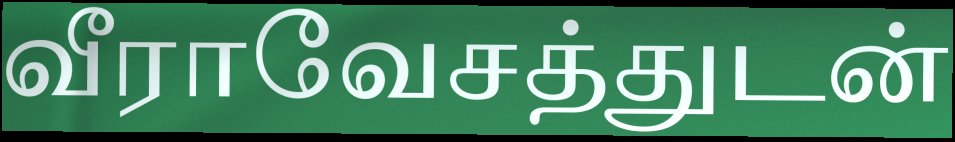
வீராவேசத்துடன்